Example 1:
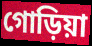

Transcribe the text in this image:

গোড়িয়া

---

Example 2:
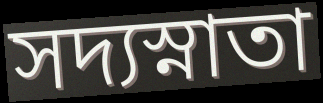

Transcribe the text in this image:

সদ্যস্নাতা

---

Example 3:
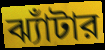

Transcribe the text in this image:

ঝ্যাঁটার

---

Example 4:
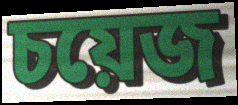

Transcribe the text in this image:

চয়েজ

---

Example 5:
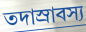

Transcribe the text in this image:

তদাস্রাবস্য